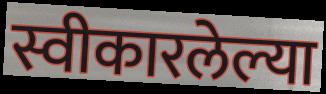
स्वीकारलेल्या